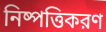
নিষ্পত্তিকরণ